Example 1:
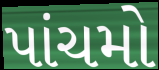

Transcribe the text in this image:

પાંચમો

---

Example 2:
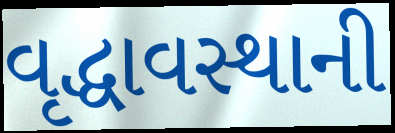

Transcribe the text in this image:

વૃદ્ધાવસ્થાની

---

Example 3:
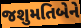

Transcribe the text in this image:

જશુમતિબેને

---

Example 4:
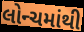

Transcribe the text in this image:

લોન્ચમાંથી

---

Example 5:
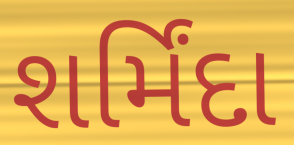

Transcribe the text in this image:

શર્મિંદા